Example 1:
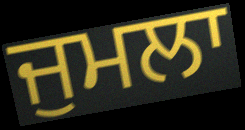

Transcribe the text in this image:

ਜੁਮਲਾ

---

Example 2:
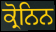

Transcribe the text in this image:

ਕ੍ਰੋਨਿਨ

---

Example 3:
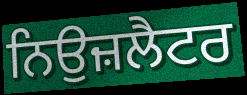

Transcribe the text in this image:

ਨਿਉਜ਼ਲੈਟਰ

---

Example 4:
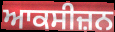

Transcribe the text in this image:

ਆਕਸੀਜ਼ਨ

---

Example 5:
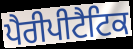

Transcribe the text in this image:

ਪੈਰੀਪੀਟੈਟਿਕ